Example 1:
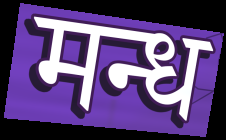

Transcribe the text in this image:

मन्ध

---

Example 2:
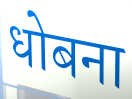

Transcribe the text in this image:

धोबना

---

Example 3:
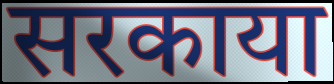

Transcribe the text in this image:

सरकाया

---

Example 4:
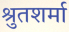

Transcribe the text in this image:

श्रुतशर्मा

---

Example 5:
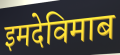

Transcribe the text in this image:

इमदेविमाब